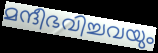
മന്ദീഭവിച്ചവയും